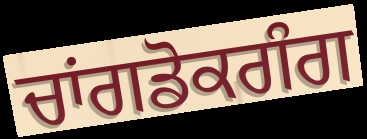
ਚਾਂਗਡੋਕਗੰਗ